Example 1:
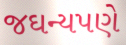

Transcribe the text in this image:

જઘન્યપણે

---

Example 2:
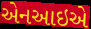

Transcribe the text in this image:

એનઆઇએ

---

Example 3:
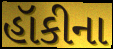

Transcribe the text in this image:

હૉકીના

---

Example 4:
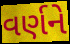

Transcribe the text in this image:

વર્ણને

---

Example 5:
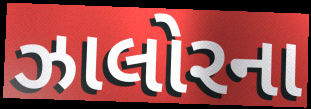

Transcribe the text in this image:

ઝાલોરના